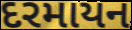
દરમાયન